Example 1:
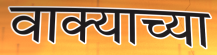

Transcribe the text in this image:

वाक्याच्या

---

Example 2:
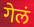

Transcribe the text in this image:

गेलं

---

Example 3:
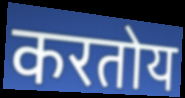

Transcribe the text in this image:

करतोय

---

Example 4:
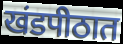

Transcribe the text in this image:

खंडपीठात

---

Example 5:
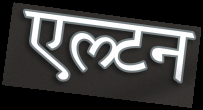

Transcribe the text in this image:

एल्टन